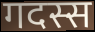
गदस्स